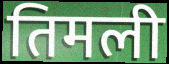
तिमली